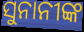
ସୁନାନୀଙ୍କ